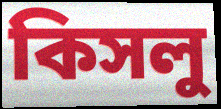
কিসলু